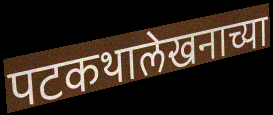
पटकथालेखनाच्या